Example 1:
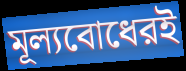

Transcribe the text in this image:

মূল্যবোধেরই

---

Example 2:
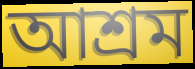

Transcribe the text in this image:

আশ্রম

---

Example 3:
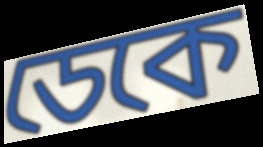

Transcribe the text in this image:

ডেকে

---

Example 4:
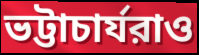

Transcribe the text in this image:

ভট্টাচার্যরাও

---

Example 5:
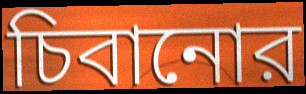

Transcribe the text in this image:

চিবানোর